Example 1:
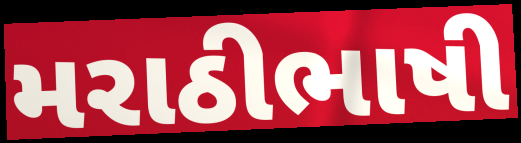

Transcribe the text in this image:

મરાઠીભાષી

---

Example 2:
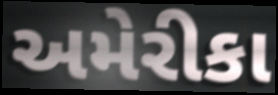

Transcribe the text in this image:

અમેરીકા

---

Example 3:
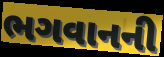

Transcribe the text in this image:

ભગવાનની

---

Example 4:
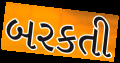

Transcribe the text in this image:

બરકતી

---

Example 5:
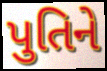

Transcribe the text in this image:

પુતિને